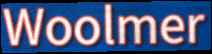
Woolmer